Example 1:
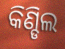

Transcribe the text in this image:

କିଣ୍ଡିଲ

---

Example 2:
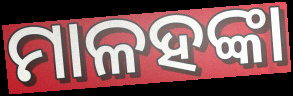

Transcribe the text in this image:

ମାଳହଙ୍କା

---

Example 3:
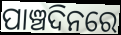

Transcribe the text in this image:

ପାଞ୍ଚଦିନରେ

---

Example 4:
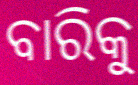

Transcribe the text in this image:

ବାରିକୁ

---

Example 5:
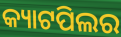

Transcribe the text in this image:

କ୍ୟାଟପିଲର